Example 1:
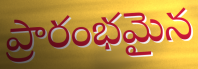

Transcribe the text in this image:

ప్రారంభమైన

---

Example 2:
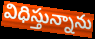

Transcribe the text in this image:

విధిస్తున్నాను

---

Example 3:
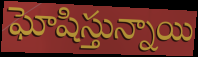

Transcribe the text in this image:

ఘోషిస్తున్నాయి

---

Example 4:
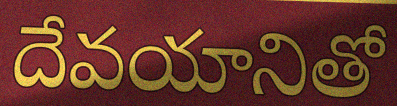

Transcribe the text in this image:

దేవయానితో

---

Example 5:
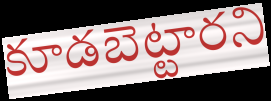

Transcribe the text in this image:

కూడబెట్టారని